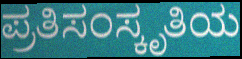
ಪ್ರತಿಸಂಸ್ಕೃತಿಯ